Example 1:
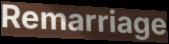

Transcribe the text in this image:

Remarriage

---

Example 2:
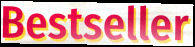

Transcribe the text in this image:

Bestseller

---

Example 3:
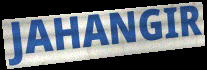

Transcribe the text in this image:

JAHANGIR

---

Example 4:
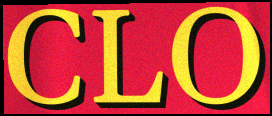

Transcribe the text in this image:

CLO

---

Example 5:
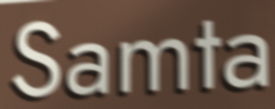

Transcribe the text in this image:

Samta